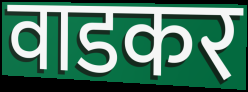
वाडकर